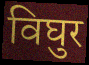
विघुर